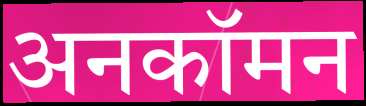
अनकॉमन